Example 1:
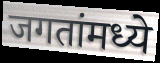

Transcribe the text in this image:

जगतांमध्ये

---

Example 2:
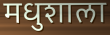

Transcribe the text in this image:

मधुशाला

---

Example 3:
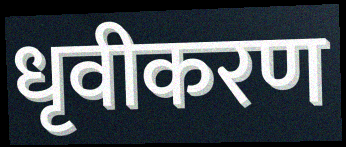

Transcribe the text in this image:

धृवीकरण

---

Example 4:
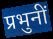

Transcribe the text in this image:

प्रभुनीं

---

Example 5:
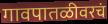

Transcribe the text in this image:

गावपातळीवरचं